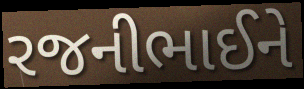
રજનીભાઈને